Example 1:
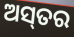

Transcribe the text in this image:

ଅସ୍‌ତର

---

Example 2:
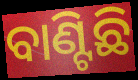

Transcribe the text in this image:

ବାଣ୍ଟିଛି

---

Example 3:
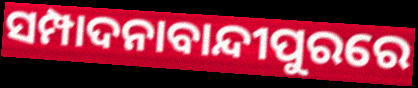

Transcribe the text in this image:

ସମ୍ପାଦନାବାନ୍ଦୀପୁରରେ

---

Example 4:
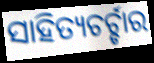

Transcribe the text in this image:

ସାହିତ୍ୟଚର୍ଚ୍ଚାର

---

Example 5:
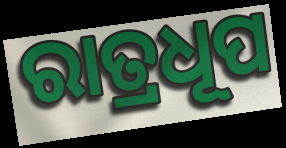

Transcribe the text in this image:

ରାତ୍ରଧୂପ